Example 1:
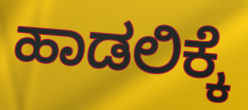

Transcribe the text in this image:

ಹಾಡಲಿಕ್ಕೆ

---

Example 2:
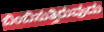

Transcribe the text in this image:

ಬಿಂಬಿಸುತ್ತಿರುವುದು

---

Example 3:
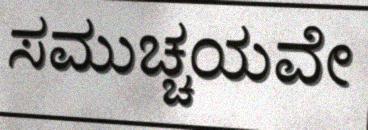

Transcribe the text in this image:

ಸಮುಚ್ಚಯವೇ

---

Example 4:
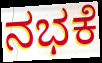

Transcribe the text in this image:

ನಭಕೆ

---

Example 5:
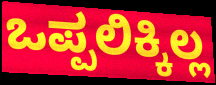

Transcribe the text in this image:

ಒಪ್ಪಲಿಕ್ಕಿಲ್ಲ